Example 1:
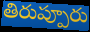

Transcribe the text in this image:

తిరుప్పూరు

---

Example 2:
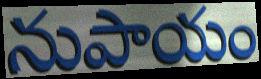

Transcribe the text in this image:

నుపాయం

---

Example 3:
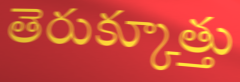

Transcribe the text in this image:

తెరుక్కూత్తు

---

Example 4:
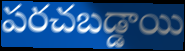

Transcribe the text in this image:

పరచబడ్డాయి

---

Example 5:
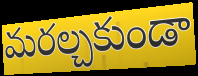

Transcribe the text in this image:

మరల్చకుండా